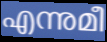
എന്നുമീ